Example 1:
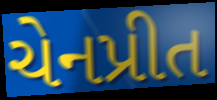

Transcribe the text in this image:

ચેનપ્રીત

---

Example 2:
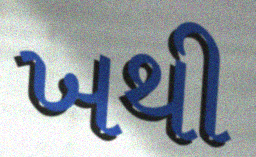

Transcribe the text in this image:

ખથી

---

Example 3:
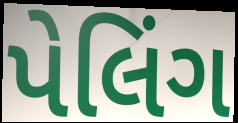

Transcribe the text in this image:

પેલિંગ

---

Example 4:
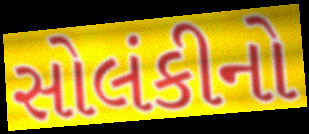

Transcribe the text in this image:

સોલંકીનો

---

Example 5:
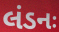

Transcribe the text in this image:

લંડનઃ